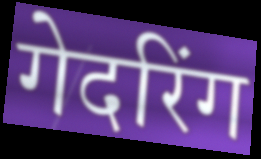
गेदरिंग